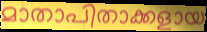
മാതാപിതാക്കളായ